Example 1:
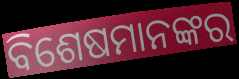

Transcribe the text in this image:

ବିଶେଷମାନଙ୍କର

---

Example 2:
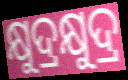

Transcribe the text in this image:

କ୍ଷୁଦ୍ରକ୍ଷୁଦ୍ର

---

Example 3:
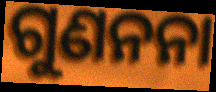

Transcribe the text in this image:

ଗୁଣନନା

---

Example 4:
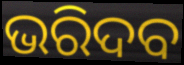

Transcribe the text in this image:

ଭରିଦବ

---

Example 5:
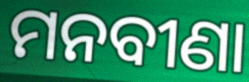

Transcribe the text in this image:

ମନବୀଣା